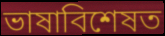
ভাষাবিশেষত